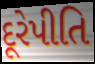
દૂરેપીતિ